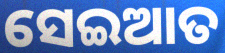
ସେଇଆତ